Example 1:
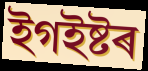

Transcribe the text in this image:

ইগইষ্টৰ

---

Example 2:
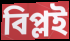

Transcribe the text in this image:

বিপ্লই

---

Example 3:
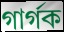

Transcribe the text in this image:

গাৰ্গক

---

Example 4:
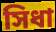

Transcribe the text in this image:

সিধা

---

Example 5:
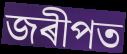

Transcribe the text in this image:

জৰীপত